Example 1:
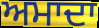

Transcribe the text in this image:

ਅਮਾਦਾ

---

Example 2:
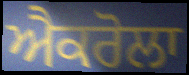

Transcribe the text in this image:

ਐਕਰੋਲਾ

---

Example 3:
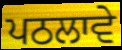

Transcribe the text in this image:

ਪਠਲਾਵੇ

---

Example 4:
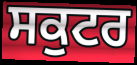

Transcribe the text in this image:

ਸਕੁਟਰ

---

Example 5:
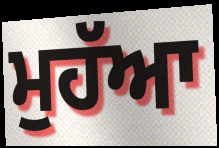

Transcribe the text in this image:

ਮੁਹੱਆ